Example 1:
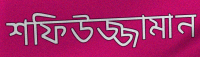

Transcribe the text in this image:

শফিউজ্জামান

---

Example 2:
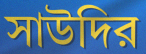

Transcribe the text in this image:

সাউদির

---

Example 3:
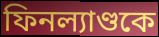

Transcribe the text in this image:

ফিনল্যাণ্ডকে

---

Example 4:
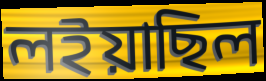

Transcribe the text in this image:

লইয়াছিল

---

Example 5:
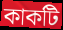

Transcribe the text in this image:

কাকটি